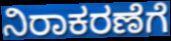
ನಿರಾಕರಣೆಗೆ